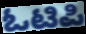
ಓಟಿಪಿ